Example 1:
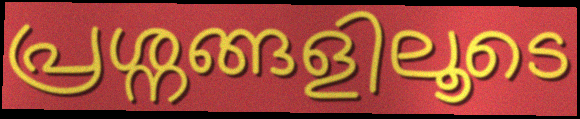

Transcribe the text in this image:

പ്രശ്നങ്ങളിലൂടെ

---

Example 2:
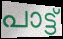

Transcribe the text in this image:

പാട്ട്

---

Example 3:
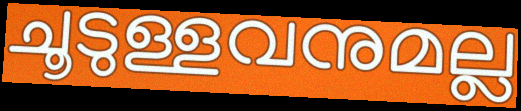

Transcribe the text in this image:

ചൂടുള്ളവനുമല്ല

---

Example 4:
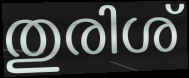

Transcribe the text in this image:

തുരിശ്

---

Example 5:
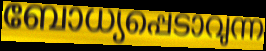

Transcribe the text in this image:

ബോധ്യപ്പെടാവുന്ന